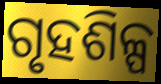
ଗୃହଶିଳ୍ପ